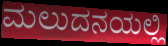
ಮಲುದನಯಲ್ಲಿ